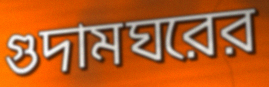
গুদামঘরের